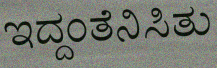
ಇದ್ದಂತೆನಿಸಿತು